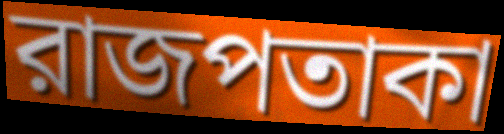
রাজপতাকা